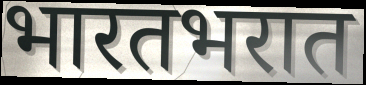
भारतभरात